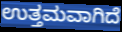
ಉತ್ತಮವಾಗಿದೆ